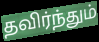
தவிர்ந்தும்